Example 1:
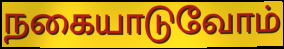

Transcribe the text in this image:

நகையாடுவோம்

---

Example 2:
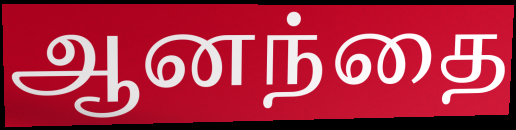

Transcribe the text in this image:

ஆனந்தை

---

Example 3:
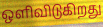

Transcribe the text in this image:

ஒளிவிடுகிறது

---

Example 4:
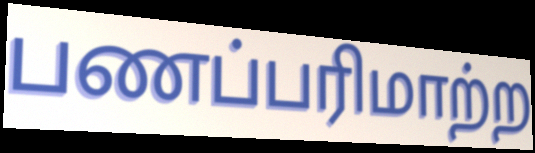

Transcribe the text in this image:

பணப்பரிமாற்ற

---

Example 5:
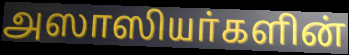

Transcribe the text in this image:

அஸாஸியர்களின்